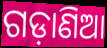
ଗଡ଼ାଣିଆ